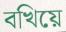
বখিয়ে